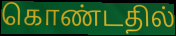
கொண்டதில்